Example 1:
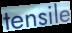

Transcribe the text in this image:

tensile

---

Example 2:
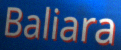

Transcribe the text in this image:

Baliara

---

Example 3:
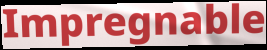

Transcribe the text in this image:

Impregnable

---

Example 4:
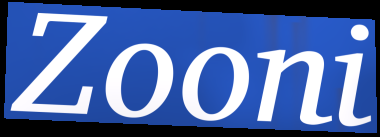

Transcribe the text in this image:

Zooni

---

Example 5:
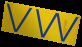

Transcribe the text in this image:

vw